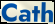
Cath